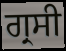
ਗ੍ਰਸੀ